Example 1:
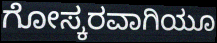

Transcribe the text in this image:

ಗೋಸ್ಕರವಾಗಿಯೂ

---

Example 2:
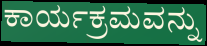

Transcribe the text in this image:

ಕಾರ್ಯಕ್ರಮವನ್ನು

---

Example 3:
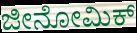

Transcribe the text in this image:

ಜೀನೋಮಿಕ್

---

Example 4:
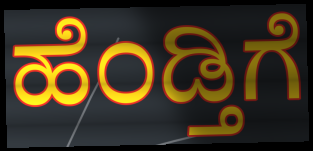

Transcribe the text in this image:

ಹೆಂಡ್ತಿಗೆ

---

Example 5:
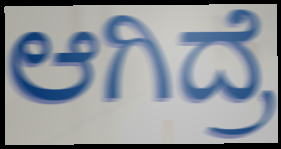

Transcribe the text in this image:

ಆಗಿದ್ರೆ